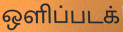
ஒளிப்படக்